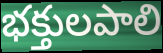
భక్తులపాలి